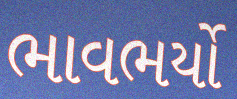
ભાવભર્યો